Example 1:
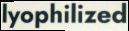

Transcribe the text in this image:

lyophilized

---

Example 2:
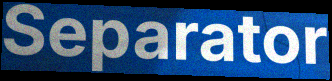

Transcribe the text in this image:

Separator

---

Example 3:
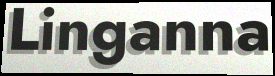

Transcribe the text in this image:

Linganna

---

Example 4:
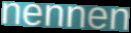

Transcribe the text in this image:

nennen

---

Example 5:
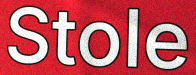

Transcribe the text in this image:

Stole